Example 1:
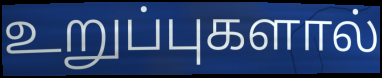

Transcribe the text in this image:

உறுப்புகளால்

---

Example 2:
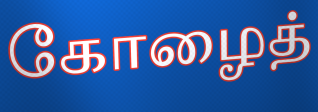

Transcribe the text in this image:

கோழைத்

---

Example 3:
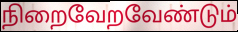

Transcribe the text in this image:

நிறைவேறவேண்டும்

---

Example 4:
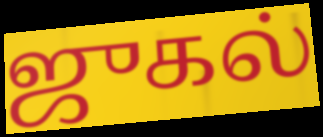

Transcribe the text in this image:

ஜுகல்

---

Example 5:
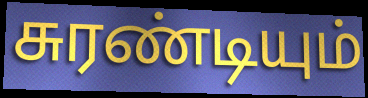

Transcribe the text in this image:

சுரண்டியும்